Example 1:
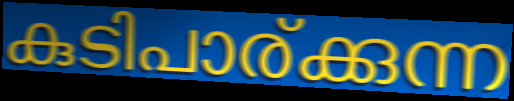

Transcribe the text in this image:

കുടിപാര്ക്കുന്ന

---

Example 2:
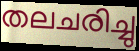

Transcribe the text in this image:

തലചരിച്ചു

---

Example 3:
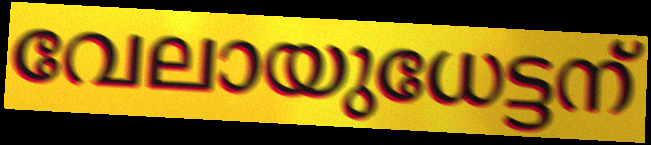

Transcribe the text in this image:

വേലായുധേട്ടന്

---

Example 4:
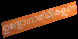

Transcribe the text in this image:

ഉദ്യോഗാര്ഥികളുടെ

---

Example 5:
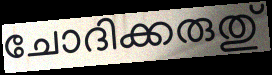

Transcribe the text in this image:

ചോദിക്കരുതു്